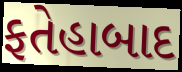
ફતેહાબાદ